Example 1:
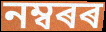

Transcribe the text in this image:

নম্বৰৰ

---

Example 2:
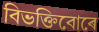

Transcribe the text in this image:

বিভক্তিবোৰে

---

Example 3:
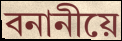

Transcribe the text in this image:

বনানীয়ে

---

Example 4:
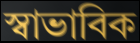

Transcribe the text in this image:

স্বাভাবিক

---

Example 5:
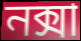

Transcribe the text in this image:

নক্সা